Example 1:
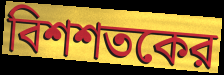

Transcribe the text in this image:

বিশশতকের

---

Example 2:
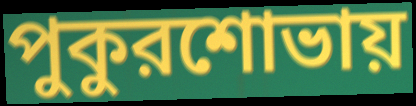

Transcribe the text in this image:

পুকুরশোভায়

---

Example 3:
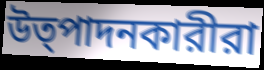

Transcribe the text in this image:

উত্পাদনকারীরা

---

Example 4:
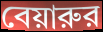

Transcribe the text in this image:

বেয়ারুর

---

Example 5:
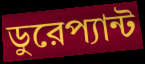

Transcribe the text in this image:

ডুরেপ্যান্ট